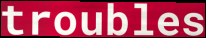
troubles